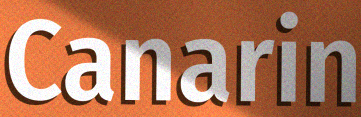
Canarin